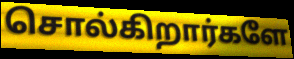
சொல்கிறார்களே